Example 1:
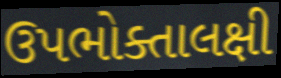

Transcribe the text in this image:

ઉપભોક્તાલક્ષી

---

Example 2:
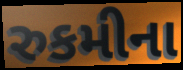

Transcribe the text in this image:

રુકમીના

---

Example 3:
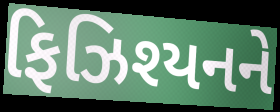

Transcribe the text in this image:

ફિઝિશ્યનને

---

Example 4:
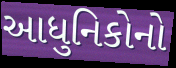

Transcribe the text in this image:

આધુનિકોનો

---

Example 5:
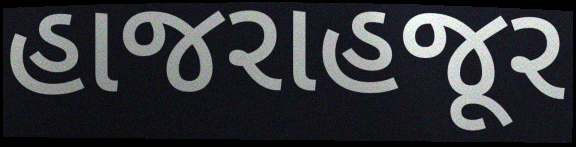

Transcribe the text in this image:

હાજરાહજૂર